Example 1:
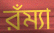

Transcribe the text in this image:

রঁম্যা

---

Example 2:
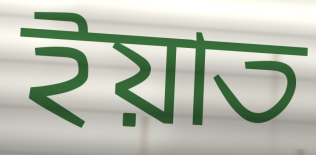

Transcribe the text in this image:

ইয়াত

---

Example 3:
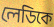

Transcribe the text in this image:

লেডিকে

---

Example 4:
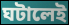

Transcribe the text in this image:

ঘটালেই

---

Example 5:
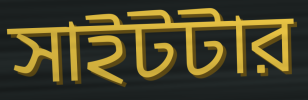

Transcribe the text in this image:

সাইটটার